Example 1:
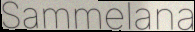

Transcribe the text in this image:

Sammelana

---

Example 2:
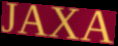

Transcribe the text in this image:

JAXA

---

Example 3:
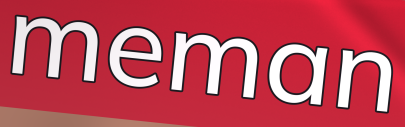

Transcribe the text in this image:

meman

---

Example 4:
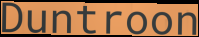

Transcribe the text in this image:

Duntroon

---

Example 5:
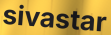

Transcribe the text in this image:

sivastar